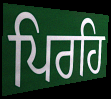
ਪਿਰਹਿ